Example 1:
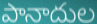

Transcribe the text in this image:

పానాదుల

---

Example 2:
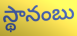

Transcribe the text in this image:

స్థానంబు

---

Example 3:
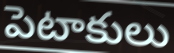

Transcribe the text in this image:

పెటాకులు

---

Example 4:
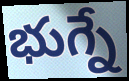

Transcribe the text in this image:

భుగ్నే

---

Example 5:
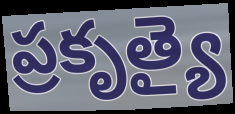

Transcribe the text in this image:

ప్రకృత్యై